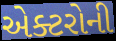
એક્ટરોની